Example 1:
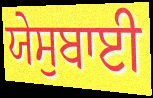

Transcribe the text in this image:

ਯੇਸੁਬਾਈ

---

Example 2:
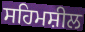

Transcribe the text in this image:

ਸਹਿਮਸ਼ੀਲ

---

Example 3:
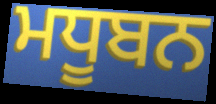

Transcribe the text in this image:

ਮਧੂਬਨ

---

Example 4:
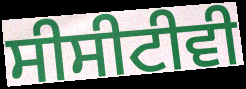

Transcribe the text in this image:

ਸੀਸੀਟੀਵੀ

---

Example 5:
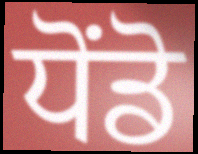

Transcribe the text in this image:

ਧੋਂਡੋ